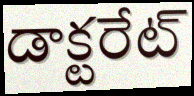
డాక్టరేట్